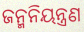
ଜନ୍ମନିୟନ୍ତ୍ରଣ